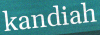
kandiah